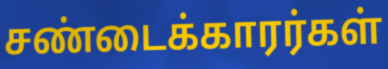
சண்டைக்காரர்கள்